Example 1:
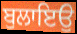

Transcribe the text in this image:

ਬੁਲਾਇਉ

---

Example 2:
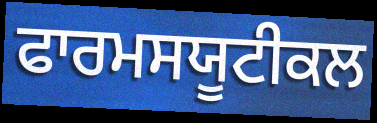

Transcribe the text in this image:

ਫਾਰਮਸਯੂਟੀਕਲ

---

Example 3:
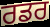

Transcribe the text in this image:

ਰਡਰ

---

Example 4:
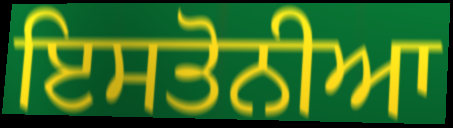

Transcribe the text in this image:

ਇਸਤੋਨੀਆ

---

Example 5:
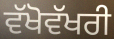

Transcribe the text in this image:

ਵੱਖੋਵੱਖਰੀ